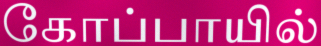
கோப்பாயில்